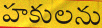
హకులను